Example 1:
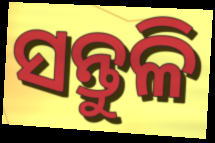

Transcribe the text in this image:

ସନ୍ତୁଳି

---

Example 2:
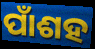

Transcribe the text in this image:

ପାଁଶହ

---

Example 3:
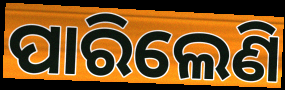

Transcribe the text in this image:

ପାରିଲେଣି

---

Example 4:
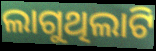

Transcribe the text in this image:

ଲାଗୁଥିଲାଟି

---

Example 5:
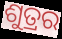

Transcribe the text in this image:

ଶୁତ୍ରର